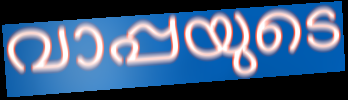
വാപ്പയുടെ